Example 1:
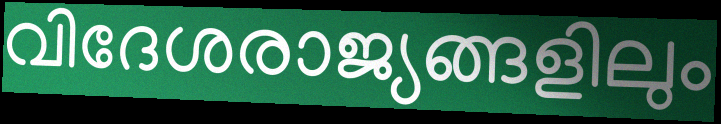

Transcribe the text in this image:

വിദേശരാജ്യങ്ങളിലും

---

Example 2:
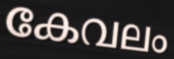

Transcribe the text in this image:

കേവലം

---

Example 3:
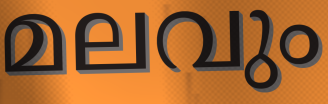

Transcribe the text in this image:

മലവും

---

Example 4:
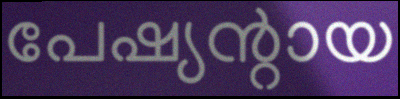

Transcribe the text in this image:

പേഷ്യന്റായ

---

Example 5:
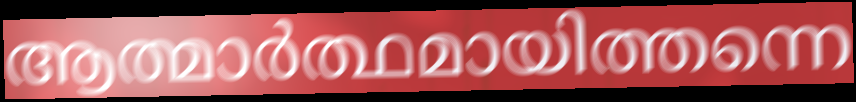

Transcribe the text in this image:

ആത്മാർത്ഥമായിത്തന്നെ